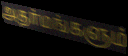
அதர்மங்களும்